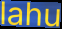
lahu